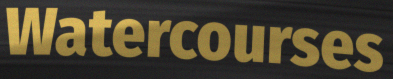
Watercourses